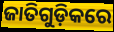
ଜାତିଗୁଡ଼ିକରେ